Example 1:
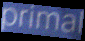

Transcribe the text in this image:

primal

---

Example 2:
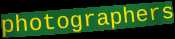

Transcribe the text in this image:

photographers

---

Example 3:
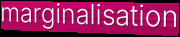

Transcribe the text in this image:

marginalisation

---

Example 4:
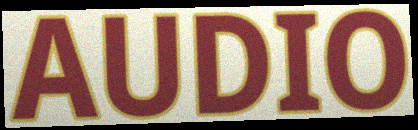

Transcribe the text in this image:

AUDIO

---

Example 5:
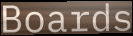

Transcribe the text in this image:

Boards